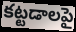
కట్టడాలపై